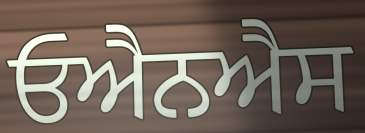
ਓਐਨਐਸ